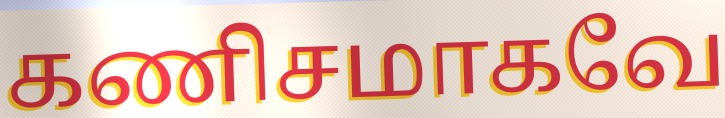
கணிசமாகவே